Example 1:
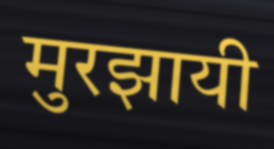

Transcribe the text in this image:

मुरझायी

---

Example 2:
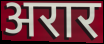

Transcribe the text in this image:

अरार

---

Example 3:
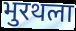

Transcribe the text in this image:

भुरथला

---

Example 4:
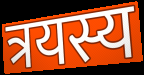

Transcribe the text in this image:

त्रयस्य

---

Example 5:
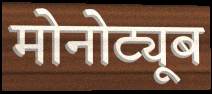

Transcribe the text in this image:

मोनोट्यूब